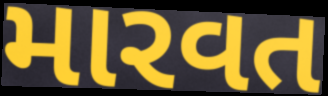
મારવત